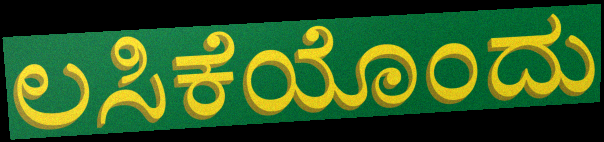
ಲಸಿಕೆಯೊಂದು